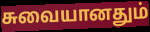
சுவையானதும்